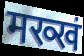
मख्खं